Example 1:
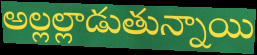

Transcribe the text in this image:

అల్లల్లాడుతున్నాయి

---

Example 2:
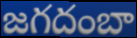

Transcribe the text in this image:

జగదంబా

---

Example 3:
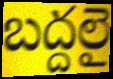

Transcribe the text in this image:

బద్దలై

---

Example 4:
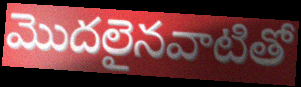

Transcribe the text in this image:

మొదలైనవాటితో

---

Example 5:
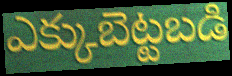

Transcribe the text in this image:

ఎక్కుబెట్టబడి